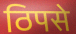
ठिपसे